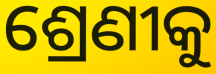
ଶ୍ରେଣୀକୁ